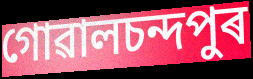
গোৱালচন্দপুৰ